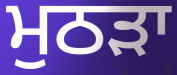
ਮੁਠੜਾ